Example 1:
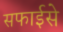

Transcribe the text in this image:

सफाईसे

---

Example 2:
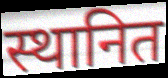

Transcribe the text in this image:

स्थानित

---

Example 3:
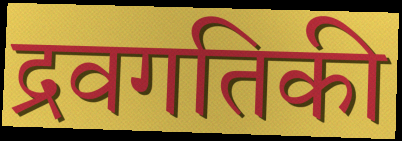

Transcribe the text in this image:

द्रवगतिकी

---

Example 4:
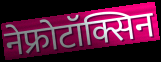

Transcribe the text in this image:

नेफ्रोटॉक्सिन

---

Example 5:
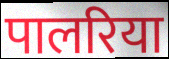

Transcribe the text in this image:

पालरिया